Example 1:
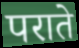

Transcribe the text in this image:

पराते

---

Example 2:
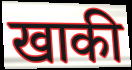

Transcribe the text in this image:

खाकी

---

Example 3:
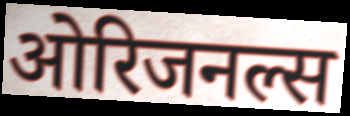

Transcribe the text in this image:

ओरिजनल्स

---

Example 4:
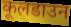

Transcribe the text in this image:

कूलडाउन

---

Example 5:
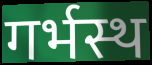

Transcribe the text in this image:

गर्भस्थ